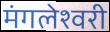
मंगलेश्वरी